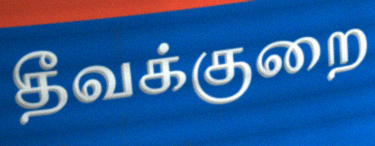
தீவக்குறை